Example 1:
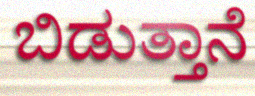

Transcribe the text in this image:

ಬಿಡುತ್ತಾನೆ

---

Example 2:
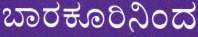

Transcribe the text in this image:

ಬಾರಕೂರಿನಿಂದ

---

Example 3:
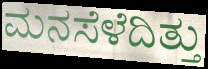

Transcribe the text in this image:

ಮನಸೆಳೆದಿತ್ತು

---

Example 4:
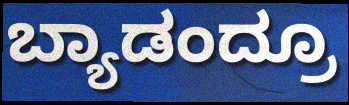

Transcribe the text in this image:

ಬ್ಯಾಡಂದ್ರೂ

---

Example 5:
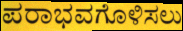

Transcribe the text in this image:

ಪರಾಭವಗೊಳಿಸಲು